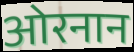
ओरनान